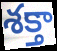
శక్తా